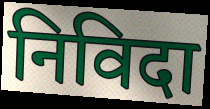
निविदा